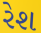
રેશ